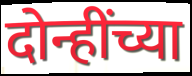
दोन्हींच्या